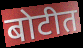
बोटीत